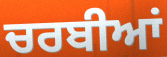
ਚਰਬੀਆਂ